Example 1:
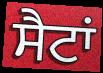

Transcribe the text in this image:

ਸੈਟਾਂ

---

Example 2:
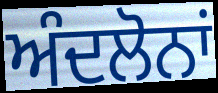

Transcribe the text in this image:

ਅੰਦਲੋਨਾਂ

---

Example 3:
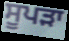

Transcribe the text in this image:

ਸੂਪੜਾ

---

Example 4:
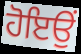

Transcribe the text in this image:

ਹੋਇਉਂ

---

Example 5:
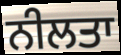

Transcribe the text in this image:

ਨੀਲਤਾ